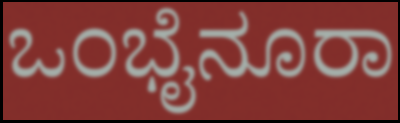
ಒಂಭೈನೂರಾ